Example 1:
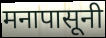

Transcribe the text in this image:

मनापासूनी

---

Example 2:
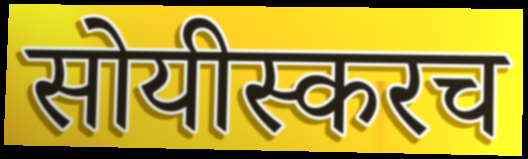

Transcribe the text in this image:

सोयीस्करच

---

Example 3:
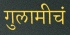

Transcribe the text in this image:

गुलामीचं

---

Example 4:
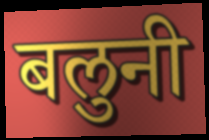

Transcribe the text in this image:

बलुनी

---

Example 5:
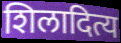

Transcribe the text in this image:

शिलादित्य